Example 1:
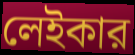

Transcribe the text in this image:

লেইকার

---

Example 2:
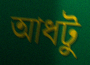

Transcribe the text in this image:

আধটু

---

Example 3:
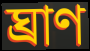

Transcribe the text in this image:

ঘ্রাণ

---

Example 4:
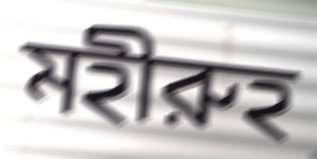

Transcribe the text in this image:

মহীরুহ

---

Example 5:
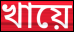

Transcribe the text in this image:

খায়ে